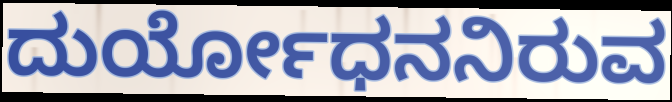
ದುರ್ಯೋಧನನಿರುವ